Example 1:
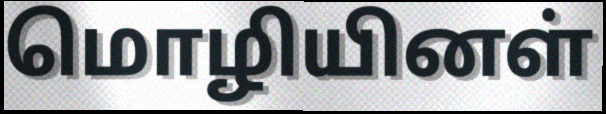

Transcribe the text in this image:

மொழியினள்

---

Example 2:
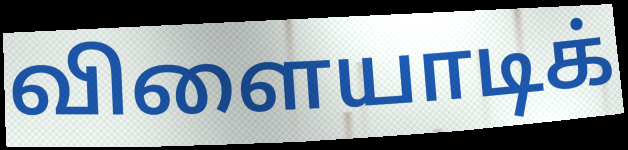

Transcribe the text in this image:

விளையாடிக்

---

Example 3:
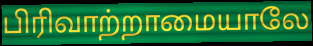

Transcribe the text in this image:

பிரிவாற்றாமையாலே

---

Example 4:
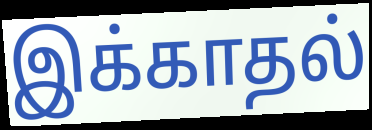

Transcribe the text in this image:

இக்காதல்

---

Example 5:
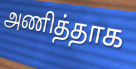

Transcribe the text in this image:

அணித்தாக